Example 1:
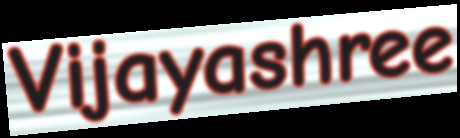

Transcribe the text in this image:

Vijayashree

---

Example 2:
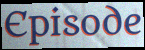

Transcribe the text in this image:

Episode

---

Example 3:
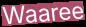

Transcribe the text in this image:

Waaree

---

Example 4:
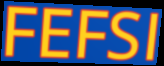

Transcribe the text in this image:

FEFSI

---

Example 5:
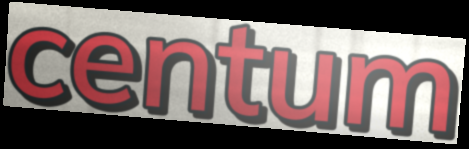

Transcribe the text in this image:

centum